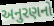
અનુરણનો